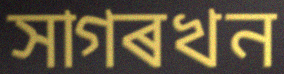
সাগৰখন